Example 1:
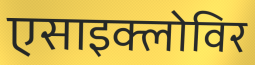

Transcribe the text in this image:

एसाइक्लोविर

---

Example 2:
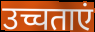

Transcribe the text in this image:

उच्चताएं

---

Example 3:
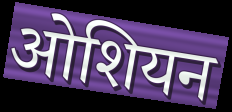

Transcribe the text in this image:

ओशियन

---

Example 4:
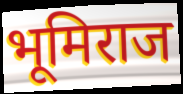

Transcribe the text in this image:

भूमिराज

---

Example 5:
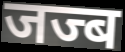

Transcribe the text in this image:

जज्ब